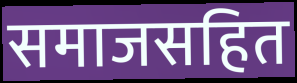
समाजसहित